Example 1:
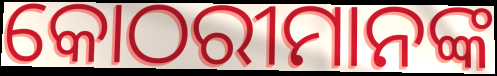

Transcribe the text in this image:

କୋଠରୀମାନଙ୍କ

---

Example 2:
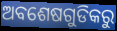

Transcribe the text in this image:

ଅବଶେଷଗୁଡିକରୁ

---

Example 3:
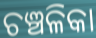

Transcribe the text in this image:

ଚଞ୍ଚଳିକା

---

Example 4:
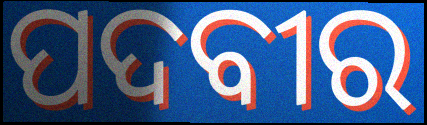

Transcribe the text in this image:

ପଦବୀର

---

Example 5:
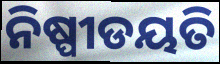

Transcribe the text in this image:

ନିଷ୍ପୀଡୟତି